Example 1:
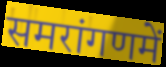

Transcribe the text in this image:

समरांगणमें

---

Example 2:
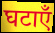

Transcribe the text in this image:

घटाएँ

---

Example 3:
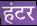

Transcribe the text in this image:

हंटर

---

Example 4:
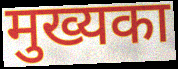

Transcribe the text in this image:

मुख्यका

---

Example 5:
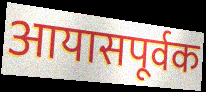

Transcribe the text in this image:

आयासपूर्वक